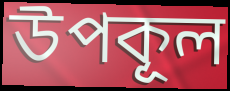
উপকূল